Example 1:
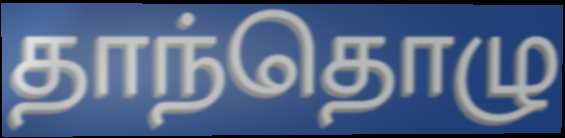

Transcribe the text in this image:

தாந்தொழு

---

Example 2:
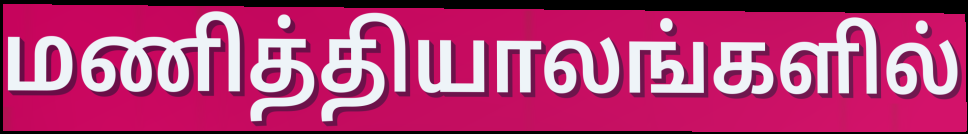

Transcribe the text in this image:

மணித்தியாலங்களில்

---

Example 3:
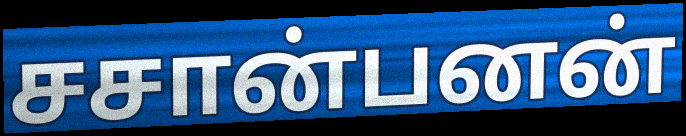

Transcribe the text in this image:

சசான்பனன்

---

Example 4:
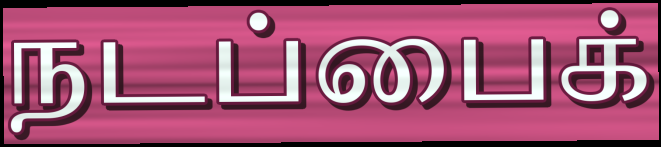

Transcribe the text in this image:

நடப்பைக்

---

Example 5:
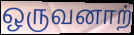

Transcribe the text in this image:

ஒருவனாற்